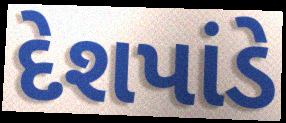
દેશપાંડે